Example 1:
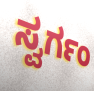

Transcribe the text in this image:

ಸ್ವರ್ಗಂ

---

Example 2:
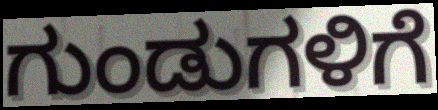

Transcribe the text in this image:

ಗುಂಡುಗಳಿಗೆ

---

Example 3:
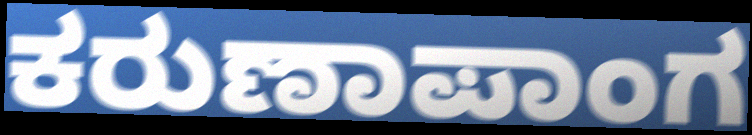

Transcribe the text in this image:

ಕರುಣಾಪಾಂಗ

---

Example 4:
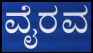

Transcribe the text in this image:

ವೈರವ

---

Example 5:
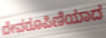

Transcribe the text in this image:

ದೇವರೂಪಿಣಿಯಾದ